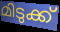
മിടുക്ക്